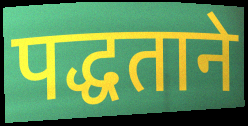
पद्धताने